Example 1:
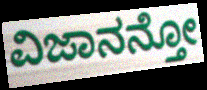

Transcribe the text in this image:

ವಿಜಾನನ್ತೋ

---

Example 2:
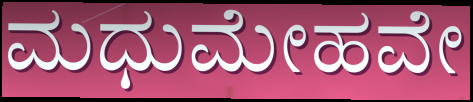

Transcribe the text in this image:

ಮಧುಮೇಹವೇ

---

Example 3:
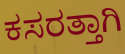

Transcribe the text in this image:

ಕಸರತ್ತಾಗಿ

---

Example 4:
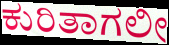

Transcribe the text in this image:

ಕುರಿತಾಗಲೀ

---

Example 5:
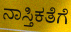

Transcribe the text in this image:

ನಾಸ್ತಿಕತೆಗೆ